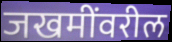
जखमींवरील